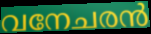
വനേചരൻ